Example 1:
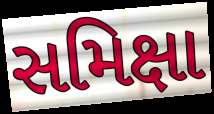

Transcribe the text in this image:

સમિક્ષા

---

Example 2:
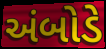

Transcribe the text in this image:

અંબોડે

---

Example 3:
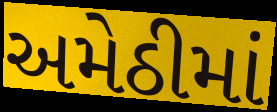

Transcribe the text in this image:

અમેઠીમાં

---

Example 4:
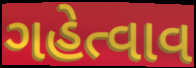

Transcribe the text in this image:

ગહેત્વાવ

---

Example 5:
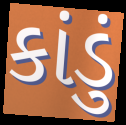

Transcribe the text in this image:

કાંડું